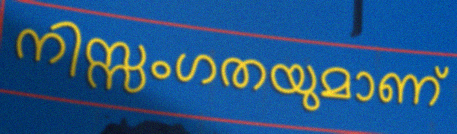
നിസ്സംഗതയുമാണ്